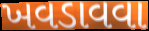
ખવડાવવા